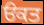
ੳਕਤ